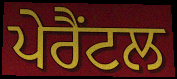
ਪੇਰੈਂਟਲ